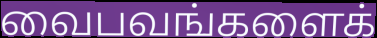
வைபவங்களைக்